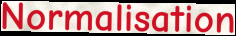
Normalisation